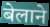
बेलाने